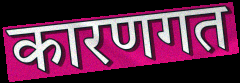
कारणगत